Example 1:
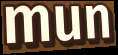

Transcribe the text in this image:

mun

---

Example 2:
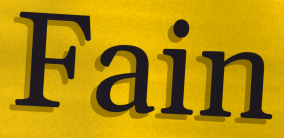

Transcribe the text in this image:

Fain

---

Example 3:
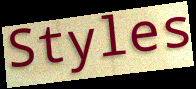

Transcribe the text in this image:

Styles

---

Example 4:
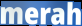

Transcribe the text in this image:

merah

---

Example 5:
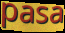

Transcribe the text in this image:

pasa